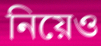
নিয়েও